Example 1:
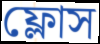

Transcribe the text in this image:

ফ্লোস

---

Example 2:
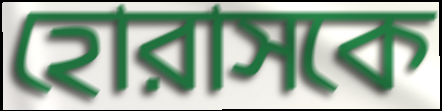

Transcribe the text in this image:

হোরাসকে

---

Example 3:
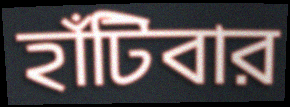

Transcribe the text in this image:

হাঁটিবার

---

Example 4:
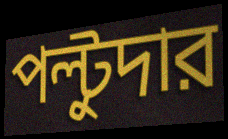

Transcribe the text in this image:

পল্টুদার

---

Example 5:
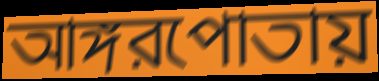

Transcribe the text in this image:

আঙ্গরপোতায়